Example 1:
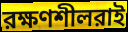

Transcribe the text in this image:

রক্ষণশীলরাই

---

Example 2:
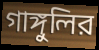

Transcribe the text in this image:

গাঙ্গুলির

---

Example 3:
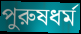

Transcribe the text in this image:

পুরুষধর্ম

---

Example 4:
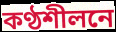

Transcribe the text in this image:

কণ্ঠশীলনে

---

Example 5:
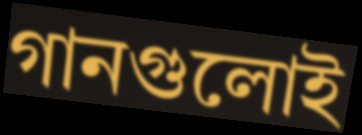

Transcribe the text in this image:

গানগুলোই